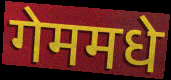
गेममधे